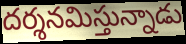
దర్శనమిస్తున్నాడు